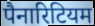
पैनारिटियम